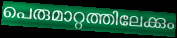
പെരുമാറ്റത്തിലേക്കും